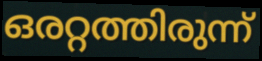
ഒരറ്റത്തിരുന്ന്